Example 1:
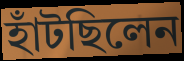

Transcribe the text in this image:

হাঁটছিলেন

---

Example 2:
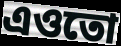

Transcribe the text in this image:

এওতো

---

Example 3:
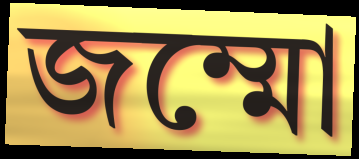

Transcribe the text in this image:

জম্মো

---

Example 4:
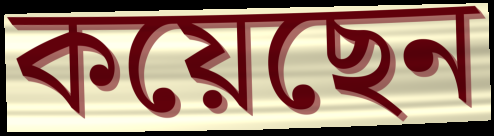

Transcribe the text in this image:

কয়েছেন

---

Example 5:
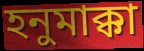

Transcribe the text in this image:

হনুমাক্কা